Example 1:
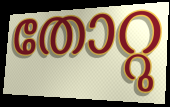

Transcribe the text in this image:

തോറ്റു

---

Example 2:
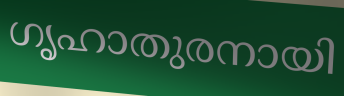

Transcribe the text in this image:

ഗൃഹാതുരനായി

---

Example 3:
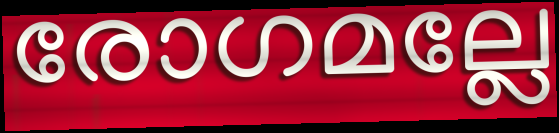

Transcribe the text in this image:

രോഗമല്ലേ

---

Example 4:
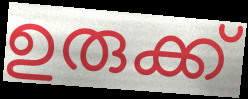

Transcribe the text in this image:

ഉരുക്ക്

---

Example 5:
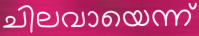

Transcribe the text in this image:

ചിലവായെന്ന്